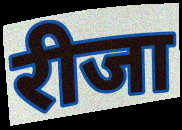
रीजा